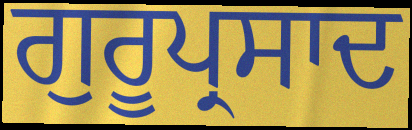
ਗੁਰੂਪ੍ਰਸਾਦ